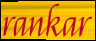
rankar